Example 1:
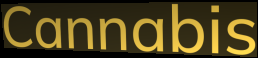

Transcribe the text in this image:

Cannabis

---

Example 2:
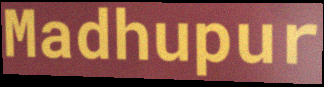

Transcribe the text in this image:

Madhupur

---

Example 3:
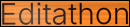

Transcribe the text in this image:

Editathon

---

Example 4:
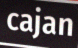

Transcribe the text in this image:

cajan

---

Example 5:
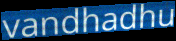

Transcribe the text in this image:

vandhadhu